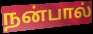
நன்பால்